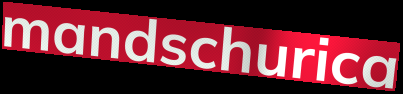
mandschurica